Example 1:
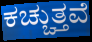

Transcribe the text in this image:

ಕಚ್ಚುತ್ತವೆ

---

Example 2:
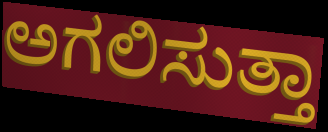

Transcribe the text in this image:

ಅಗಲಿಸುತ್ತಾ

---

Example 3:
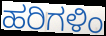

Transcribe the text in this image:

ಹರಿಗಳಿಂ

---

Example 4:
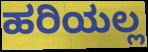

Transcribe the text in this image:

ಹರಿಯಲ್ಲ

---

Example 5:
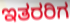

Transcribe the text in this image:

ಇತರರಿಗ